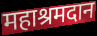
महाश्रमदान